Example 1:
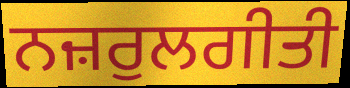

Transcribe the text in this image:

ਨਜ਼ਰੁਲਗੀਤੀ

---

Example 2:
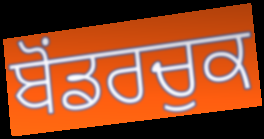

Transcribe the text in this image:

ਬੋਂਡਰਚੁਕ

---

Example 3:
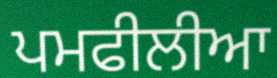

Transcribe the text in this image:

ਪਮਫੀਲੀਆ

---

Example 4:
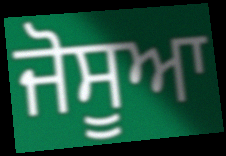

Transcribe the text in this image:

ਜੋਸੂਆ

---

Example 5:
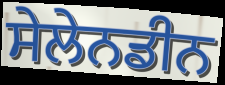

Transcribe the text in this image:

ਸੇਲੇਨਡੀਨ